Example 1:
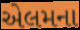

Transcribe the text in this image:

એલમના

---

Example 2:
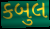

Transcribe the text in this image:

કબુલ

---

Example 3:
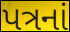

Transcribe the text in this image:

પત્રનાં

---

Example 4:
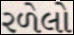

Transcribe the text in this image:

રળેલો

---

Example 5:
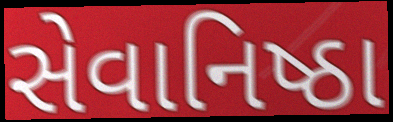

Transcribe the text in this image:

સેવાનિષ્ઠા